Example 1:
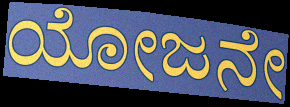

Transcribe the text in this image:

ಯೋಜನೇ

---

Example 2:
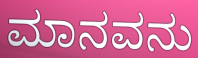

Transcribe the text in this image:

ಮಾನವನು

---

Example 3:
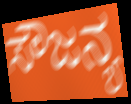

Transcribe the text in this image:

ಸೌಜನ್ಯ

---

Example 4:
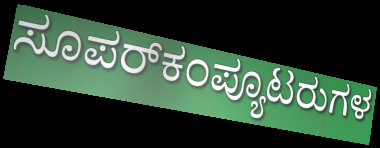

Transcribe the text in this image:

ಸೂಪರ್‌ಕಂಪ್ಯೂಟರುಗಳ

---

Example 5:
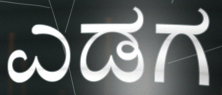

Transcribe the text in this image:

ಎಡಗ